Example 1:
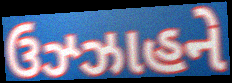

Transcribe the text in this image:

ઉઝ્ઝાહને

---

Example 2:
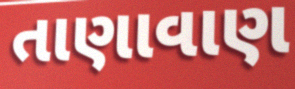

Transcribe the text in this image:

તાણાવાણ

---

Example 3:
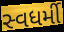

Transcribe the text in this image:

સ્વધર્મી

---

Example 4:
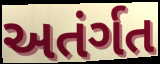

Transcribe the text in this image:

અતંર્ગત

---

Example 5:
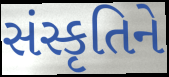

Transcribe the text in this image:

સંસ્કૃતિને